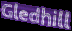
Gledhill